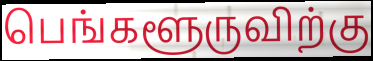
பெங்களூருவிற்கு